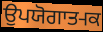
ਉਪਯੋਗਾਤ੍ਮਕ